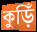
কুড়িঁ